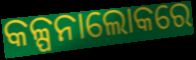
କଳ୍ପନାଲୋକରେ